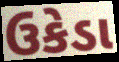
ઉકેડા